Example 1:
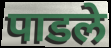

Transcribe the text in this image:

पाडले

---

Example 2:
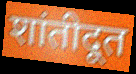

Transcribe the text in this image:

शांतीदूत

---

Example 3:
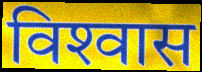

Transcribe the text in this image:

विश्‍वास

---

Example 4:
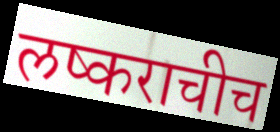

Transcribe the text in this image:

लष्कराचीच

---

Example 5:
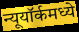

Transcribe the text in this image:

न्यूयॉर्कमध्ये